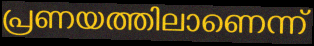
പ്രണയത്തിലാണെന്ന്